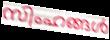
സിംഹങ്ങൾ